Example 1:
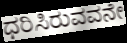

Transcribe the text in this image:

ಧರಿಸಿರುವವನೇ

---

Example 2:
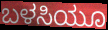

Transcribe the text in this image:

ಬಳಸಿಯೂ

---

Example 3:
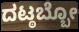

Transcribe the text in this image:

ದಟ್ಠಬ್ಬೋ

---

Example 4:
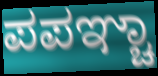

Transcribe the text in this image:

ಪಪಞ್ಚಾ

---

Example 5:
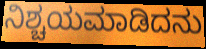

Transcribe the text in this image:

ನಿಶ್ಚಯಮಾಡಿದನು